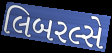
લિબરલ્સે